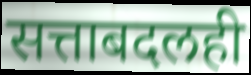
सत्ताबदलही